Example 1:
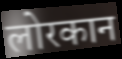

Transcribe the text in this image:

लोरकान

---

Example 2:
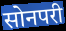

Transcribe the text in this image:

सोनपरी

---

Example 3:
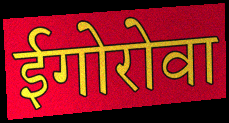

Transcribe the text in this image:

ईगोरोवा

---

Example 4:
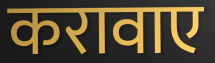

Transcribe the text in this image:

करावाए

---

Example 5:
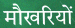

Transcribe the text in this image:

मौखरियों